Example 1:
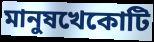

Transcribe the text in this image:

মানুষখেকোটি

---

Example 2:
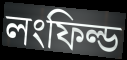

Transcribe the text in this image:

লংফিল্ড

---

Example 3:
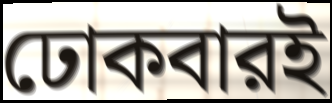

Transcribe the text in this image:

ঢোকবারই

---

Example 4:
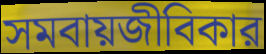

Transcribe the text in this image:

সমবায়জীবিকার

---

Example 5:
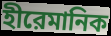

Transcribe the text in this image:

হীরেমানিক